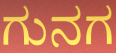
ಗುನಗ